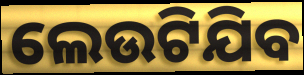
ଲେଉଟିଯିବ